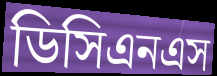
ডিসিএনএস